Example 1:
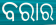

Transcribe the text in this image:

ବରାର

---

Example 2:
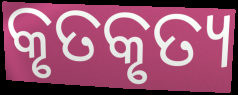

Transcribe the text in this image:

କୃତକୃତ୍ୟ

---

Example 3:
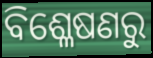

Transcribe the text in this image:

ବିଶ୍ଳେଷଣରୁ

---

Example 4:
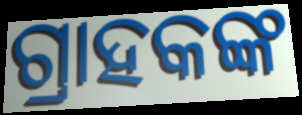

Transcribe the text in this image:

ଗ୍ରାହକଙ୍କ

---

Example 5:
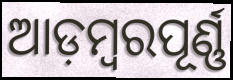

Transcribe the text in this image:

ଆଡ଼ମ୍ବରପୂର୍ଣ୍ଣ